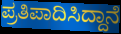
ಪ್ರತಿಪಾದಿಸಿದ್ದಾನೆ